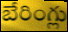
బేరింగ్లు